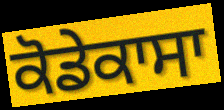
ਕੋਡੇਕਾਸਾ